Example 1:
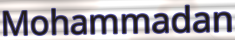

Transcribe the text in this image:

Mohammadan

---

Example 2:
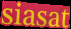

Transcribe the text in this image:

siasat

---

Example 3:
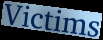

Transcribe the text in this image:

Victims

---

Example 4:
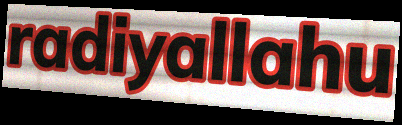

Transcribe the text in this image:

radiyallahu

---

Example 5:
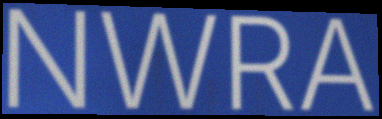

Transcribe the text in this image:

NWRA